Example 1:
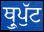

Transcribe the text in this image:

ਥ੍ਰੁਪੁੱਟ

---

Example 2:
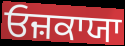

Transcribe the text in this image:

ਓਜ਼ਕਾਯਾ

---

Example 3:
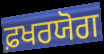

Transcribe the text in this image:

ਫ਼ਖਰਯੋਗ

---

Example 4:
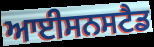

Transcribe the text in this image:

ਆਈਸਨਸਟੈਡ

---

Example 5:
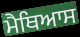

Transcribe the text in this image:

ਮੈਥਿਆਸ